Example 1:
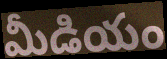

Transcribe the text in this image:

మీడియం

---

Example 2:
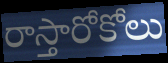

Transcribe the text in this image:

రాస్తారోకోలు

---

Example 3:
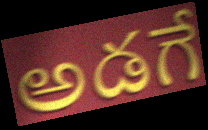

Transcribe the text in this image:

అడగే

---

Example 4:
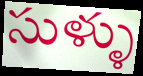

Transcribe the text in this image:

సుళ్ళు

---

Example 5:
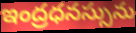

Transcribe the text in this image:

ఇంద్రధనస్సును